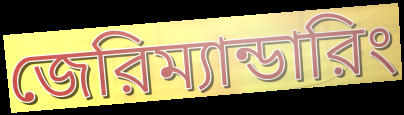
জেরিম্যান্ডারিং